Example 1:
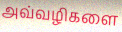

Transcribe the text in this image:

அவ்வழிகளை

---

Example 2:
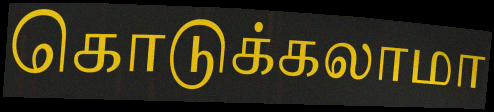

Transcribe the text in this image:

கொடுக்கலாமா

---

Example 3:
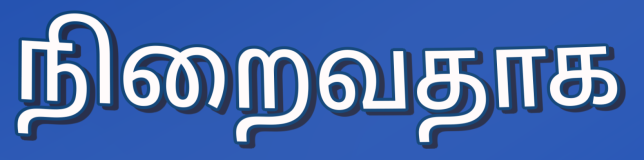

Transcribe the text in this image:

நிறைவதாக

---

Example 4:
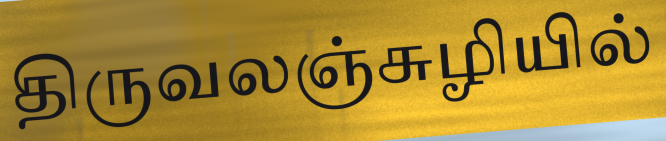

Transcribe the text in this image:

திருவலஞ்சுழியில்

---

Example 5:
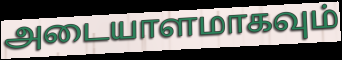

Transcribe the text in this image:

அடையாளமாகவும்